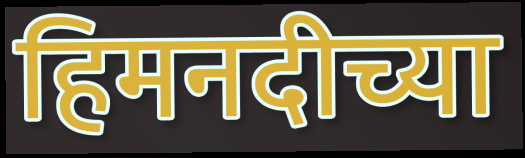
हिमनदीच्या